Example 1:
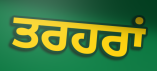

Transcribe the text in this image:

ਤਰਹਰਾਂ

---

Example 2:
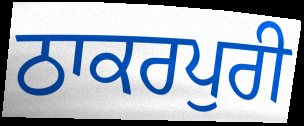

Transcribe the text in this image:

ਠਾਕਰਪੁਰੀ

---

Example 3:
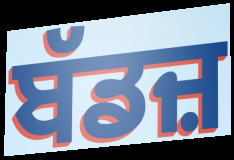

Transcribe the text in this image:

ਬੱਡਜ਼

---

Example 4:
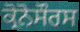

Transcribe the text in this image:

ਕ੍ਰੋਨੋਸੌਰਸ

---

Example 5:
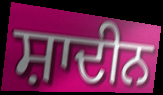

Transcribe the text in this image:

ਸ਼ਾਦੀਨ